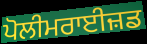
ਪੋਲੀਮਰਾਈਜ਼ਡ